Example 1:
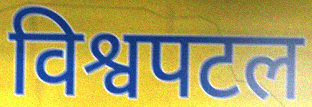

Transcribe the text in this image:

विश्वपटल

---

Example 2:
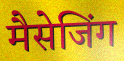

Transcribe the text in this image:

मैसेजिंग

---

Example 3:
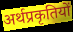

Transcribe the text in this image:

अर्थप्रकृतियों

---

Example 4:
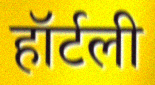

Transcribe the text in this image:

हॉर्टली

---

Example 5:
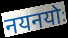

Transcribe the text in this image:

नयनयोः